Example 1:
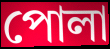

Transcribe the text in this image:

পোলা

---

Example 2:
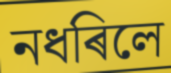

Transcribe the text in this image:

নধৰিলে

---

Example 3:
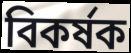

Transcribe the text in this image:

বিকৰ্ষক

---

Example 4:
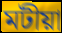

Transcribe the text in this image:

মটীয়া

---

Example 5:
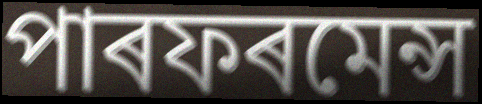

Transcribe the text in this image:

পাৰফৰমেন্স